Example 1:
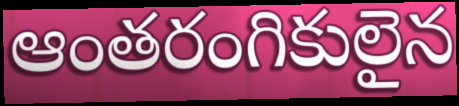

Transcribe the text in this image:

ఆంతరంగికులైన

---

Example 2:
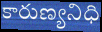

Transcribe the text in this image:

కారుణ్యనిధి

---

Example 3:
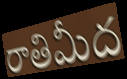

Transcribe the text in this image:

రాతిమీద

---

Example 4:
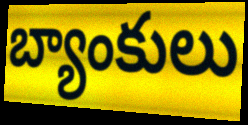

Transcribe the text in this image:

బ్యాంకులు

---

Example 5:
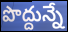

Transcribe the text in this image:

పొద్దున్నే